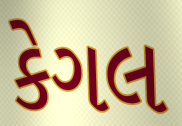
કેગલ